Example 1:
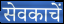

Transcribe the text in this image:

सेवकाचें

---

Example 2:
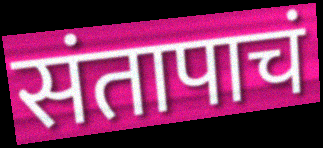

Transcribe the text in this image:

संतापाचं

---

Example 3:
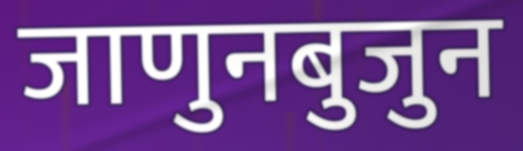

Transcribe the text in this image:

जाणुनबुजुन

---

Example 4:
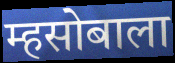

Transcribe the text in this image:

म्हसोबाला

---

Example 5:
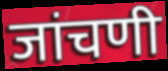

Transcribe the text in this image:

जांचणी